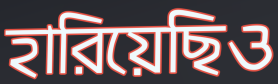
হারিয়েছিও